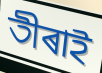
তীৰাই